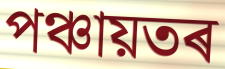
পঞ্চায়তৰ